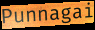
Punnagai